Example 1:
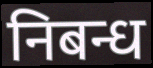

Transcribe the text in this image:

निबन्‍ध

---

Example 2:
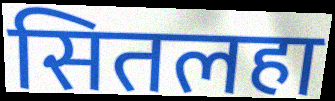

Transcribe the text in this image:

सितलहा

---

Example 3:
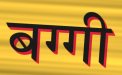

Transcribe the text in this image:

बग्‍गी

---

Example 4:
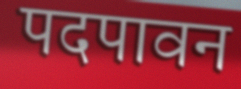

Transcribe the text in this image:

पदपावन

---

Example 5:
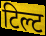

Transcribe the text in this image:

टिल्ट